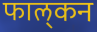
फाल्कन